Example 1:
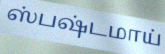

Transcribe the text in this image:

ஸ்பஷ்டமாய்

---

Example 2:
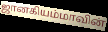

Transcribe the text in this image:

ஜானகியம்மாவின்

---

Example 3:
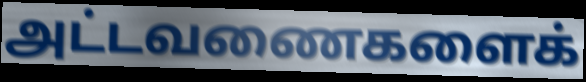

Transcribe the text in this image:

அட்டவணைகளைக்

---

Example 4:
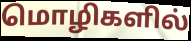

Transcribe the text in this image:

மொழிகளில்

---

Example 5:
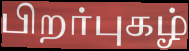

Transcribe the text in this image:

பிறர்புகழ்